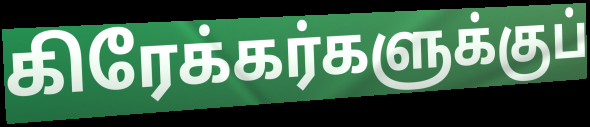
கிரேக்கர்களுக்குப்